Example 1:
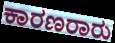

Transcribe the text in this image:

ಕಾರಣರಾರು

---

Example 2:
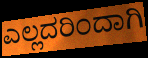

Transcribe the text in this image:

ಎಲ್ಲದರಿಂದಾಗಿ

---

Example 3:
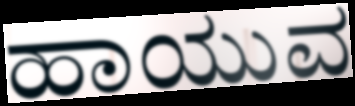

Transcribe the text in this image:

ಹಾಯುವ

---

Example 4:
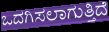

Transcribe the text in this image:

ಒದಗಿಸಲಾಗುತ್ತಿದೆ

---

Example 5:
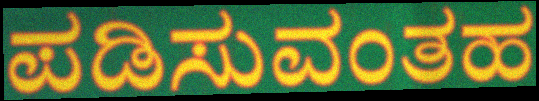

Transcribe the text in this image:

ಪಡಿಸುವಂತಹ